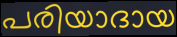
പരിയാദായ